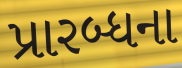
પ્રારબ્ધના